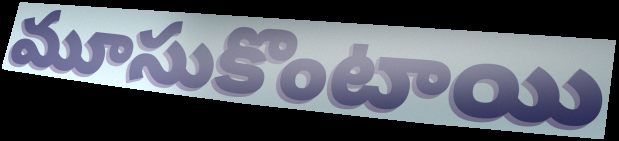
మూసుకొంటాయి